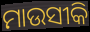
ମାଉସୀକି